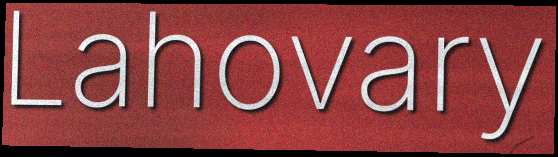
Lahovary